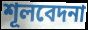
শূলবেদনা